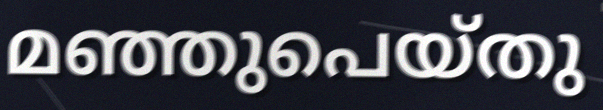
മഞ്ഞുപെയ്തു